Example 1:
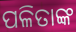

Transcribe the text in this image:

ପଳିତାଙ୍କ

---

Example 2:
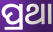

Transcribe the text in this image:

ପ୍ରଥା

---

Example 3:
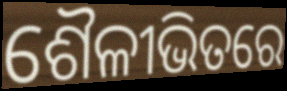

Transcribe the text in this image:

ଶୈଳୀଭିତରେ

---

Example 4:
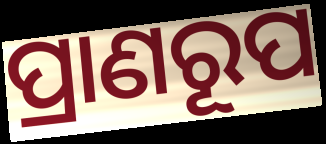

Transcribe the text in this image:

ପ୍ରାଣରୂପ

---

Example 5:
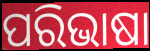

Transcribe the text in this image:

ପରିଭାଷା